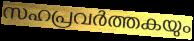
സഹപ്രവർത്തകയും